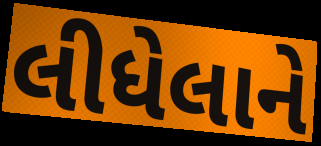
લીધેલાને